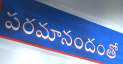
పరమానందంతో